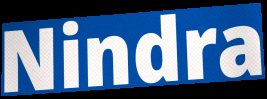
Nindra